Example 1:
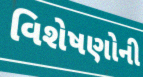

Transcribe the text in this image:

વિશેષણોની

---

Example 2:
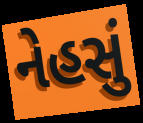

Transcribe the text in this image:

નેહસું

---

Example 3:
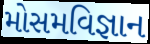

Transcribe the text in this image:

મોસમવિજ્ઞાન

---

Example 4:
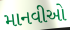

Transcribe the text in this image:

માનવીઓ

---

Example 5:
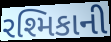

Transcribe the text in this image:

રશ્મિકાની